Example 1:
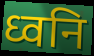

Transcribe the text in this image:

ध्‍वनि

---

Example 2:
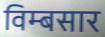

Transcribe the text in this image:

विम्बसार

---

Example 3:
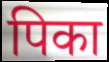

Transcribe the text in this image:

पिका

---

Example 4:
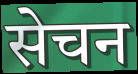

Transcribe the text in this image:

सेचन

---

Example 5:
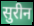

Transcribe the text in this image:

सुरीन